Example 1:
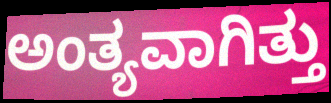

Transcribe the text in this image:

ಅಂತ್ಯವಾಗಿತ್ತು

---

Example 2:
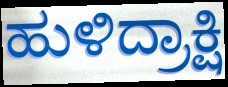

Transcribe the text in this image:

ಹುಳಿದ್ರಾಕ್ಷಿ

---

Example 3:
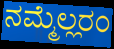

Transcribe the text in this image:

ನಮ್ಮೆಲ್ಲರಂ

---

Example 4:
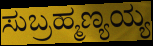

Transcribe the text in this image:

ಸುಬ್ರಹ್ಮಣ್ಯಯ್ಯ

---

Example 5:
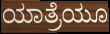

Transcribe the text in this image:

ಯಾತ್ರೆಯೂ